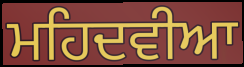
ਮਹਿਦਵੀਆ